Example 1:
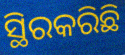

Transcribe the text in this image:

ସ୍ଥିରକରିଛି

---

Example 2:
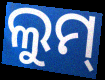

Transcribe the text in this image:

ଲୁମ୍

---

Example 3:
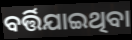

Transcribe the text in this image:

ବର୍ତ୍ତିଯାଇଥିବା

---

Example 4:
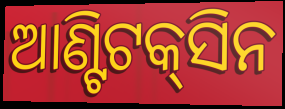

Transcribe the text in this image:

ଆଣ୍ଟିଟକ୍‌ସିନ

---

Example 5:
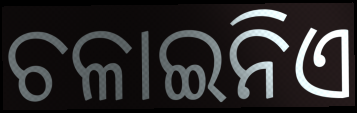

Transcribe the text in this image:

ଚଳାଇନିଏ